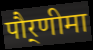
पौर्णीमा